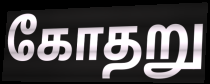
கோதறு